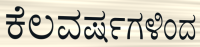
ಕೆಲವರ್ಷಗಳಿಂದ